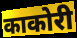
काकोरी